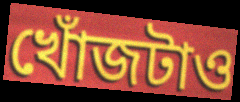
খোঁজটাও